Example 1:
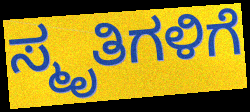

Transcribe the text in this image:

ಸ್ಮೃತಿಗಳಿಗೆ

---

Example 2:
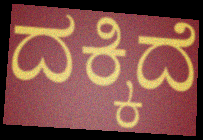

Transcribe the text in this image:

ದಕ್ಕಿದೆ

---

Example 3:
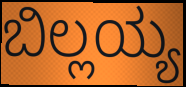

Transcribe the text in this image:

ಬಿಲ್ಲಯ್ಯ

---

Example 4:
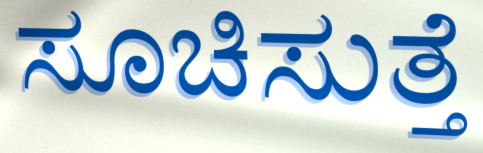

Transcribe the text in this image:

ಸೂಚಿಸುತ್ತೆ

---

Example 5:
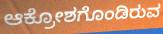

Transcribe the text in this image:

ಆಕ್ರೋಶಗೊಂಡಿರುವ